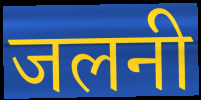
जलनी